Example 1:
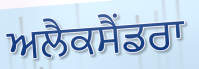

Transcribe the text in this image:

ਅਲੈਕਸੈਂਡਰਾ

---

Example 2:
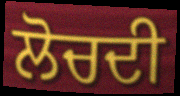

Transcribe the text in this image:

ਲੋਚਦੀ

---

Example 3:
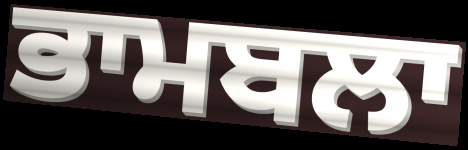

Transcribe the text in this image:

ਭਾਮਬਲਾ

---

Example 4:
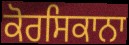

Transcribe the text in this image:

ਕੋਰਸਿਕਾਨਾ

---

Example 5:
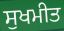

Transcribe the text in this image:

ਸੁਖਮੀਤ